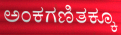
ಅಂಕಗಣಿತಕ್ಕೂ